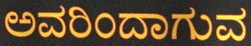
ಅವರಿಂದಾಗುವ